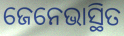
ଜେନେଭାସ୍ଥିତ